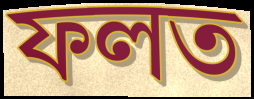
ফলত